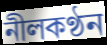
নীলকণ্ঠন